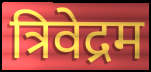
त्रिवेद्रम